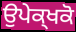
ਉਪੇਕ੍ਖਕੋ